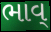
ભાવ્